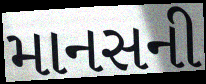
માનસની